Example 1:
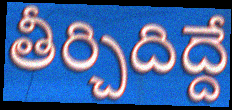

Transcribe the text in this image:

తీర్చిదిద్దే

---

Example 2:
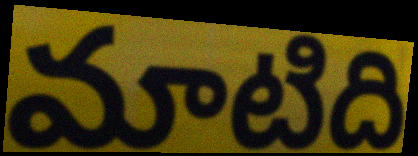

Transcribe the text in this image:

మాటిది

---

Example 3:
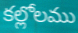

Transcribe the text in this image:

కల్లోలము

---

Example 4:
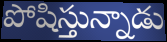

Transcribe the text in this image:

పోషిస్తున్నాడు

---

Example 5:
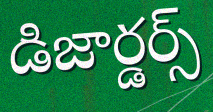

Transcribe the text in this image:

డిజార్డర్స్